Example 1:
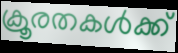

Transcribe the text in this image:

ക്രൂരതകൾക്ക്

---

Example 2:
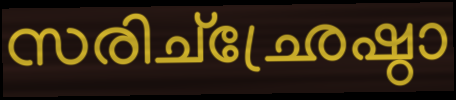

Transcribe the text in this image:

സരിച്ഛ്രേഷ്ഠാ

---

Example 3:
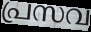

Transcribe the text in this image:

പ്രസവ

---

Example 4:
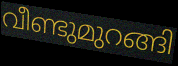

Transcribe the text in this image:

വീണ്ടുമുറങ്ങി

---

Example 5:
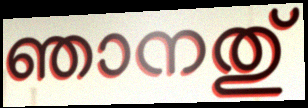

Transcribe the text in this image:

ഞാനതു്